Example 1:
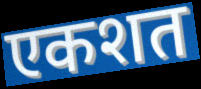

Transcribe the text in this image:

एकशत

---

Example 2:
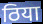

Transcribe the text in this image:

ठिया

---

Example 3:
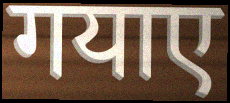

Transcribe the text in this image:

गयाए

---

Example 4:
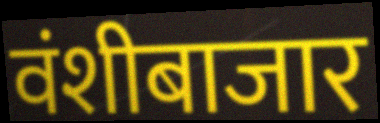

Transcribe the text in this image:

वंशीबाजार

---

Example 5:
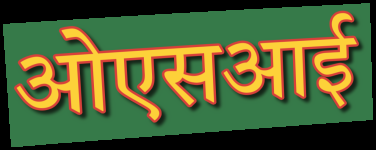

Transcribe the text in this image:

ओएसआई